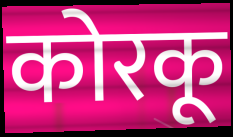
कोरकू